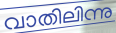
വാതിലിന്നു